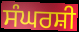
ਸੰਘਰਸ਼ੀ